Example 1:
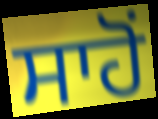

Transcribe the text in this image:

ਸਾਹੋਂ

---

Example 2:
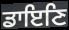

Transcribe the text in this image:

ਡਾਇਣਿ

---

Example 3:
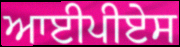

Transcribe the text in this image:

ਆਈਪੀਏਸ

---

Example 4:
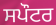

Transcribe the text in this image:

ਸਪੌਟਰ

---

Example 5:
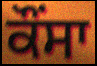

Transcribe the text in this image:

ਕੌਂਸਾ